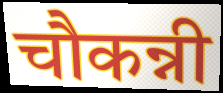
चौकन्नी